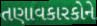
તણાવકારકોને